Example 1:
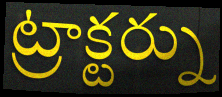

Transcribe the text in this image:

ట్రాక్టర్ను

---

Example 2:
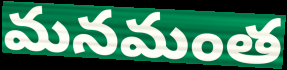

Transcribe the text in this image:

మనమంత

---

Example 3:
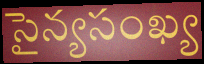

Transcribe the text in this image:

సైన్యసంఖ్య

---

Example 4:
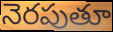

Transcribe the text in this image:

నెరపుతూ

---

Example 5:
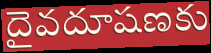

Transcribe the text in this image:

దైవదూషణకు